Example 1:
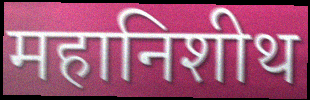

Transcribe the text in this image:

महानिशीथ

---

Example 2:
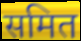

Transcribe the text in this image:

समित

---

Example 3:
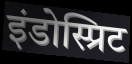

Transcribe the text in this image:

इंडोस्प्रिट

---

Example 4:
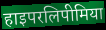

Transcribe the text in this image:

हाइपरलिपीमिया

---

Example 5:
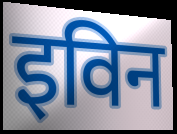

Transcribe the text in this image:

इविन